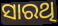
ସାରଥି